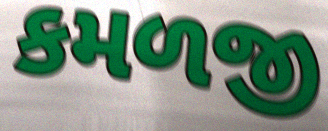
કમળજી